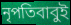
নৃপতিবাবুই